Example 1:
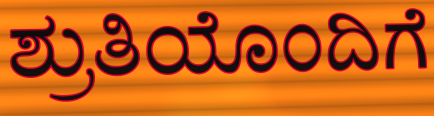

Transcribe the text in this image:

ಶ್ರುತಿಯೊಂದಿಗೆ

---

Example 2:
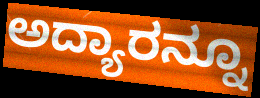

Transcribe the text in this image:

ಅದ್ಯಾರನ್ನೂ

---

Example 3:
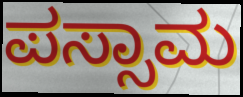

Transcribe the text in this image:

ಪಸ್ಸಾಮ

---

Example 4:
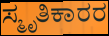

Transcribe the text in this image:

ಸ್ಮೃತಿಕಾರರ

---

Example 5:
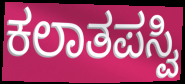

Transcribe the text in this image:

ಕಲಾತಪಸ್ವಿ